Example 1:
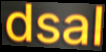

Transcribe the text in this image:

dsal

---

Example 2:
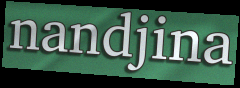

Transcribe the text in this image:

nandjina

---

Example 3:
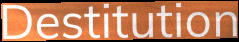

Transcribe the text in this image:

Destitution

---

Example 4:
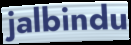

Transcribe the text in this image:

jalbindu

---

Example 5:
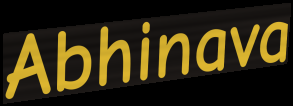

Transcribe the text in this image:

Abhinava